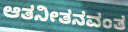
ಆತನೀತನವಂತ